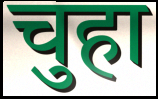
चुहा